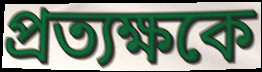
প্রত্যক্ষকে